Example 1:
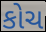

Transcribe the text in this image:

કોચ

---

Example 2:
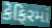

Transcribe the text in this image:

કેફિરમાં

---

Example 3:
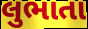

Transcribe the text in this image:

લુભાતા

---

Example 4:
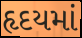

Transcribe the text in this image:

હૃદયમાં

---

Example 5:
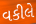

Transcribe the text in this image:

વકીલે